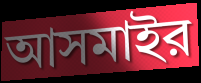
আসমাইর